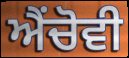
ਐਂਚੋਵੀ